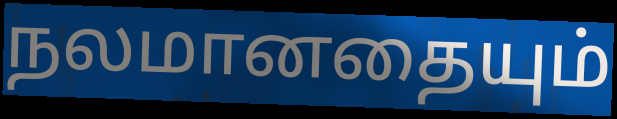
நலமானதையும்